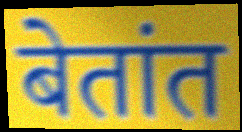
बेतांत